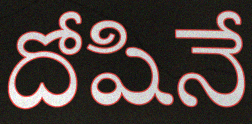
దోషినే